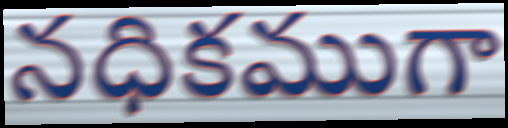
నధికముగా